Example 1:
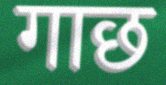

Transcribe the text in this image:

गाछ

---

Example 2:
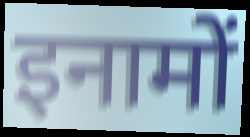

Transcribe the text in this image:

इनामों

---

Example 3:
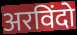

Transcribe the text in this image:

अरविंदो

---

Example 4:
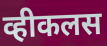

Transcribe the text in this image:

व्हीकलस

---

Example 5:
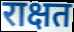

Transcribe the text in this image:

राक्षत